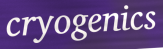
cryogenics